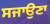
ਸਜਾਉਣਾ